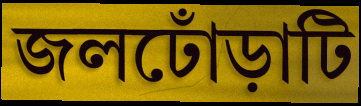
জলঢোঁড়াটি